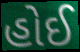
હોઈ